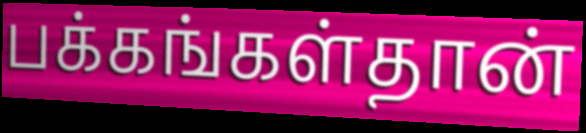
பக்கங்கள்தான்